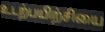
உடற்பயிற்சியை